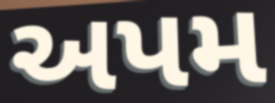
અપમ